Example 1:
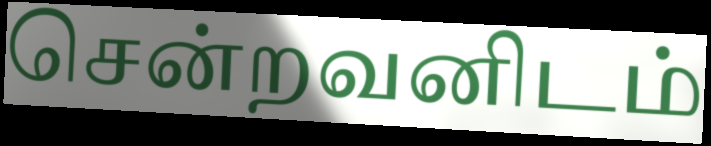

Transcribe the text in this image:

சென்றவனிடம்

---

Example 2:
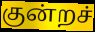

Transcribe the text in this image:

குன்றச்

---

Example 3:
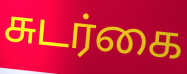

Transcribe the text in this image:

சுடர்கை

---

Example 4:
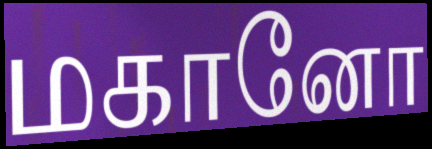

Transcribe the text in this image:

மகானோ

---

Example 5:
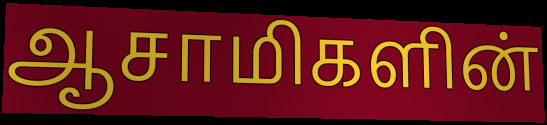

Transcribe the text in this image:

ஆசாமிகளின்